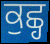
ਕੁਛ੍ਹ